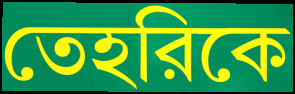
তেহরিকে